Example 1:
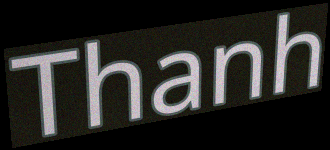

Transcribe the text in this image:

Thanh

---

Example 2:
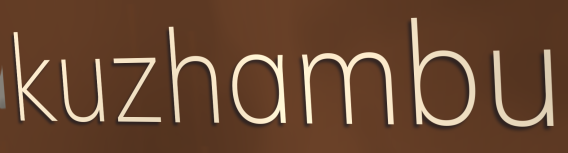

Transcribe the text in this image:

kuzhambu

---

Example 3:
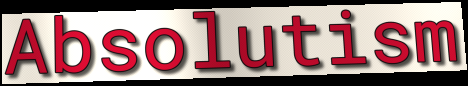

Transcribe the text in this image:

Absolutism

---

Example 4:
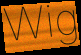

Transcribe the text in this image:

Wig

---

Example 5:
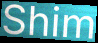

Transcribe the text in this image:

Shim